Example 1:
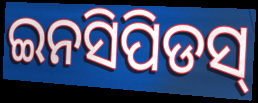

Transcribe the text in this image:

ଇନସିପିଡସ୍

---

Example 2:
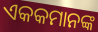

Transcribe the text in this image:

ଏକକମାନଙ୍କ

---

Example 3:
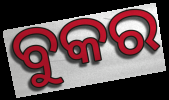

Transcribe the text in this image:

ବୁକର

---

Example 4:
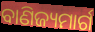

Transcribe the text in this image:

ବାଣିଜ୍ୟମାର୍ଗ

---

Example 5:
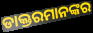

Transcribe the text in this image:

ଡାକ୍ତରମାନଙ୍କର